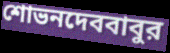
শোভনদেববাবুর